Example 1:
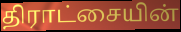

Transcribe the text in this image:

திராட்சையின்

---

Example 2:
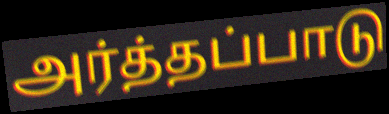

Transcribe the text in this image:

அர்த்தப்பாடு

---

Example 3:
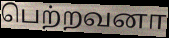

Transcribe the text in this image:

பெற்றவனா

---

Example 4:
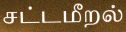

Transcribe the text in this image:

சட்டமீறல்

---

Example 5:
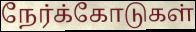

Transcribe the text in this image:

நேர்க்கோடுகள்